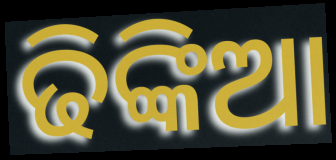
ଢିଙ୍କିଆ